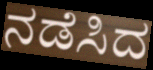
ನಡೆಸಿದ